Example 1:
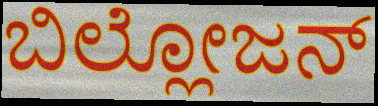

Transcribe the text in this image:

ಬಿಲ್ಲೋಜನ್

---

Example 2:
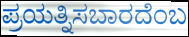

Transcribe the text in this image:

ಪ್ರಯತ್ನಿಸಬಾರದೆಂಬ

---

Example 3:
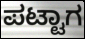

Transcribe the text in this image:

ಪಟ್ಟಾಗ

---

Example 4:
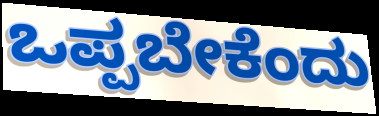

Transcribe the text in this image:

ಒಪ್ಪಬೇಕೆಂದು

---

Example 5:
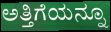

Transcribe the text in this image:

ಅತ್ತಿಗೆಯನ್ನೂ